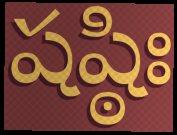
షష్ఠిః